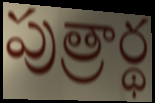
పుత్రార్థ